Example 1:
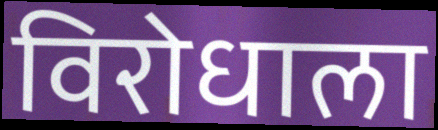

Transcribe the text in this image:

विरोधाला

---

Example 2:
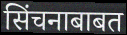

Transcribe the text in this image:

सिंचनाबाबत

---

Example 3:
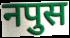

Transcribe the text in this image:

नपुस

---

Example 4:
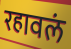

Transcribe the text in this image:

रहावलं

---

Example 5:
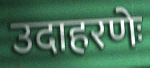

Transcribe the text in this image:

उदाहरणेः